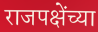
राजपक्षेंच्या